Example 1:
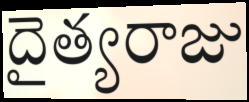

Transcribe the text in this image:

దైత్యరాజు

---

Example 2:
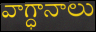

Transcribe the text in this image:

వాగ్ధానాలు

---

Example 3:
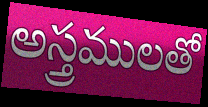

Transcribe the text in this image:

అస్త్రములతో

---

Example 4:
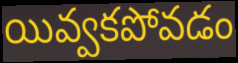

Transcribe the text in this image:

యివ్వకపోవడం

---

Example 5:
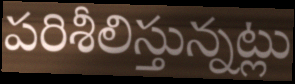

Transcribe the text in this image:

పరిశీలిస్తున్నట్లు